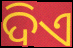
ଦିଏ